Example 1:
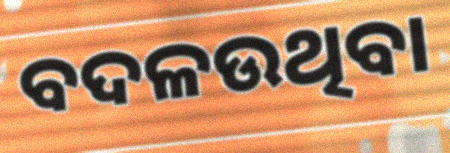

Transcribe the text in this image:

ବଦଳଉଥିବା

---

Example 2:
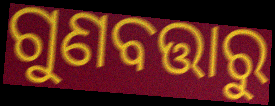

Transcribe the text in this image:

ଗୁଣବତ୍ତାରୁ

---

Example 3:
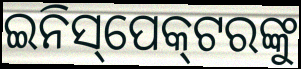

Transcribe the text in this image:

ଇନିସ୍‌ପେକ୍‌ଟରଙ୍କୁ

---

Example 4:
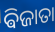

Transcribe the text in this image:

ଵିଜାତା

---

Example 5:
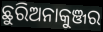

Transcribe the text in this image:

ଛୁରିଅନାକୁଞ୍ଜର